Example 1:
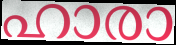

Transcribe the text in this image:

ഹാരാ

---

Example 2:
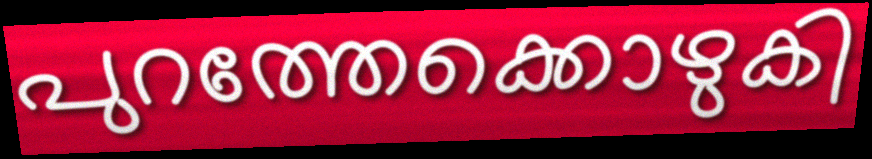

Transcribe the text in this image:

പുറത്തേക്കൊഴുകി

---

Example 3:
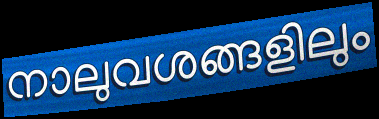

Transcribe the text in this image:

നാലുവശങ്ങളിലും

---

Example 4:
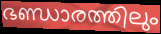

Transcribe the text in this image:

ഭണ്ഡാരത്തിലും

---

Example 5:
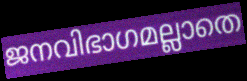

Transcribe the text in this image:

ജനവിഭാഗമല്ലാതെ